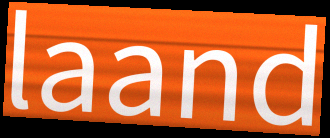
laand